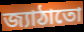
জ্যাঠাতো